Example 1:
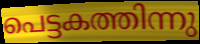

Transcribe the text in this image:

പെട്ടകത്തിന്നു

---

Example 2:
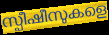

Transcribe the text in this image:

സ്പീഷീസുകളെ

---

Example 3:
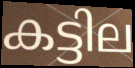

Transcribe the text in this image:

കട്ടില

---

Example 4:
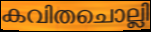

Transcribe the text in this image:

കവിതചൊല്ലി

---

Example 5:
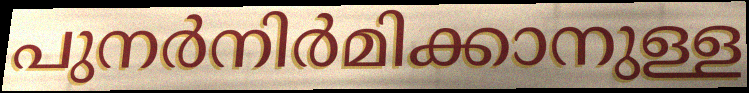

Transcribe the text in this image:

പുനർനിർമിക്കാനുള്ള